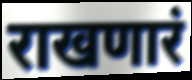
राखणारं